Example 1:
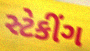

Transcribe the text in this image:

સ્ટેકીંગ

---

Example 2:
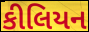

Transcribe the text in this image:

કીલિયન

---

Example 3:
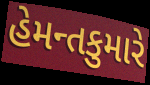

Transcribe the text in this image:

હેમન્તકુમારે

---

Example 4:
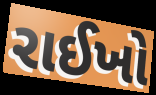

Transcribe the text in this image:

રાઈખો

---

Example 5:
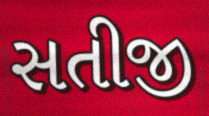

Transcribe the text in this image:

સતીજી